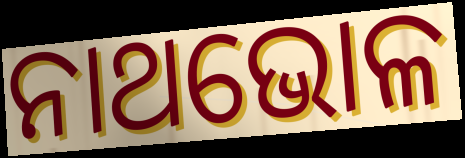
ନାଥଭୋଳ